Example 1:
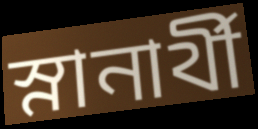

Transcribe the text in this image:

স্নানার্থী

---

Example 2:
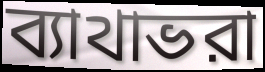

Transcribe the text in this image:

ব্যাথাভরা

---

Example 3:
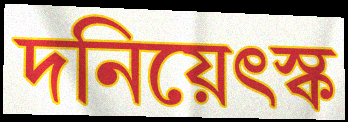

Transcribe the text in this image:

দনিয়েৎস্ক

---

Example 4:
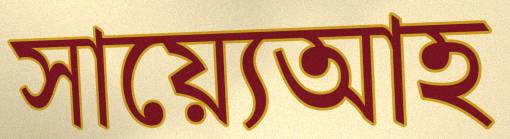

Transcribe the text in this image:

সায়্যেআহ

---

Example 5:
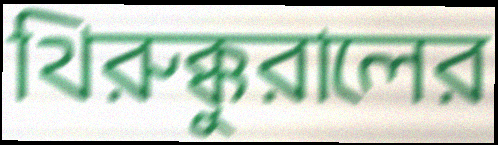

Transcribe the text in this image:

থিরুক্কুরালের